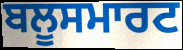
ਬਲੂਸਮਾਰਟ